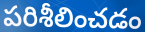
పరిశీలించడం